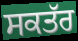
ਸਕਤੱਰ